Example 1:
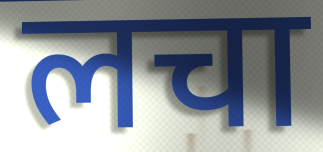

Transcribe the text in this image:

लचा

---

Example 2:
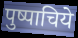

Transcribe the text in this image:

पुष्पाचिये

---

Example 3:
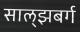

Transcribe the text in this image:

साल्झबर्ग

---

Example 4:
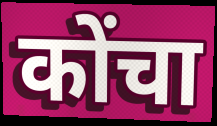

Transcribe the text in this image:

कोंचा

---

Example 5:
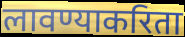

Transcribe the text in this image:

लावण्याकरिता